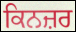
ਕਿਨਜ਼ਰ